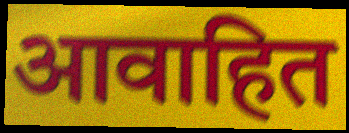
आवाहित